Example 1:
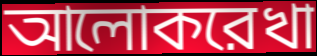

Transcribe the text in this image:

আলোকরেখা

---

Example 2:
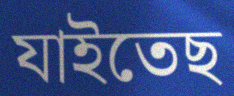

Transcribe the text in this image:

যাইতেছ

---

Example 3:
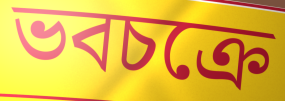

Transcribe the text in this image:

ভবচক্রে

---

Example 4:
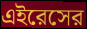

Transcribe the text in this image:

এইরেসের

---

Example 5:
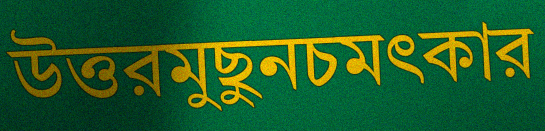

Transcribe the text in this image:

উত্তরমুছুনচমৎকার